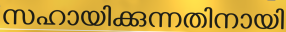
സഹായിക്കുന്നതിനായി